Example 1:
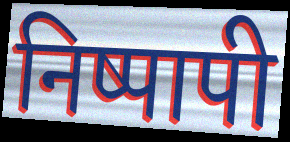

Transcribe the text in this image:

निष्पापी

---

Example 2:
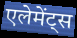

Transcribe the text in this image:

एलेमेंट्स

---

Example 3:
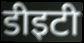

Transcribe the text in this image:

डीइटी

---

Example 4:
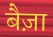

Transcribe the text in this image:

बैज़ा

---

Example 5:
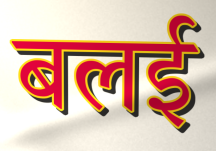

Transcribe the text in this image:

बलई